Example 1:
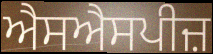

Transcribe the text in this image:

ਐਸਐਸਪੀਜ਼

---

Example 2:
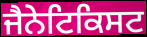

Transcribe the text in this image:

ਜੈਨੇਟਿਕਿਸਟ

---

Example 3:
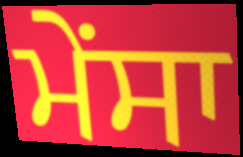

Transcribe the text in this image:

ਮੇਂਸਾ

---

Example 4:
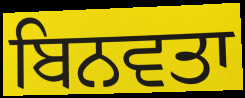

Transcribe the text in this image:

ਬਿਨਵਤਾ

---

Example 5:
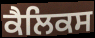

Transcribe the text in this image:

ਕੈਲਿਕਸ